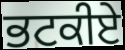
ਭਟਕੀਏ